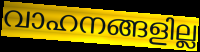
വാഹനങ്ങളില്ല